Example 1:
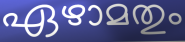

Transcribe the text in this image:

ഏഴാമതും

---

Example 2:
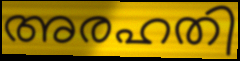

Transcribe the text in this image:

അരഹതി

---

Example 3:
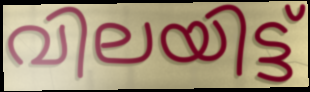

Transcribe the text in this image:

വിലയിട്ട്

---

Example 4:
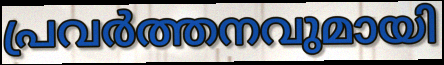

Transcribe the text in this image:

പ്രവർത്തനവുമായി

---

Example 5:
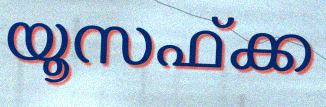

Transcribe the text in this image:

യൂസഫ്ക്ക